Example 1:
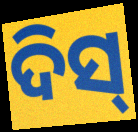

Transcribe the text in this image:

ଦିସ୍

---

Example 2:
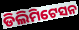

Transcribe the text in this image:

ଡିଲିମିଟେସନ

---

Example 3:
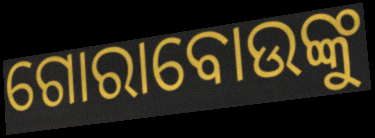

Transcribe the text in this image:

ଗୋରାବୋଉଙ୍କୁ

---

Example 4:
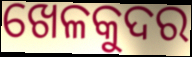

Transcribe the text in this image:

ଖେଳକୁଦର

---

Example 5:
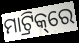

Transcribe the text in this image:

ମାଟ୍ରିକ୍‌ରେ